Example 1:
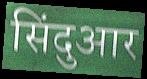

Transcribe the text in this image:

सिंदुआर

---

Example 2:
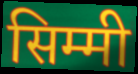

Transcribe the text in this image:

सिम्मी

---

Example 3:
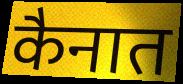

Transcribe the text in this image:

कैनात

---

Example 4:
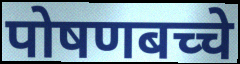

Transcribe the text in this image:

पोषणबच्चे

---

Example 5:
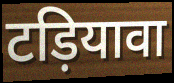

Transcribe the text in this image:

टड़ियावा